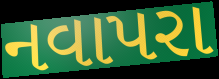
નવાપરા